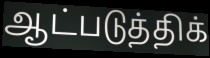
ஆட்படுத்திக்